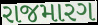
રાજમારગ